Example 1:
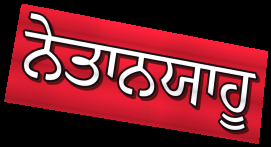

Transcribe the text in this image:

ਨੇਤਾਨਯਾਹੂ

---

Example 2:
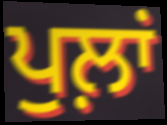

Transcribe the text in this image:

ਪੁਲ਼ਾਂ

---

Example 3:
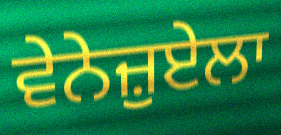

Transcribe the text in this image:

ਵੇਨੇਜ਼ੁਏਲਾ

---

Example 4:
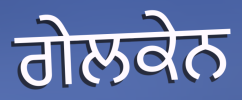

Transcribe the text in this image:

ਗੇਲਕੇਨ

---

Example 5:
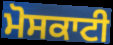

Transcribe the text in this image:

ਮੋਸਕਾਟੀ